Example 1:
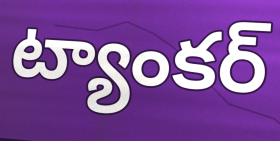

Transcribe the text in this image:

ట్యాంకర్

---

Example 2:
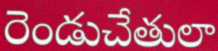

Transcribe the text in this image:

రెండుచేతులా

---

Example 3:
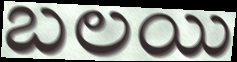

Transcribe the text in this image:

బలయి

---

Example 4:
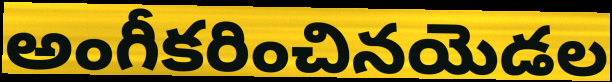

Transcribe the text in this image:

అంగీకరించినయెడల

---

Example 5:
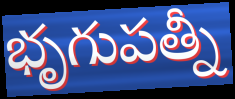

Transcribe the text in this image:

భృగుపత్నీ